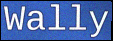
Wally